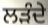
ਲੜੰਦੇ